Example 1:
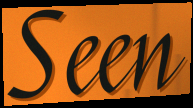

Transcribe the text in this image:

Seen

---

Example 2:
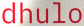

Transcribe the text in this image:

dhulo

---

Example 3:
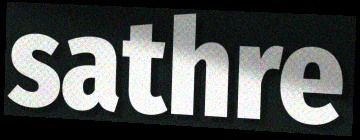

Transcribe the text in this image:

sathre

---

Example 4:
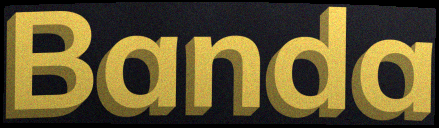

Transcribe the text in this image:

Banda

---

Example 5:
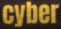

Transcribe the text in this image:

cyber